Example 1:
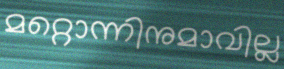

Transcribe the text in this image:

മറ്റൊന്നിനുമാവില്ല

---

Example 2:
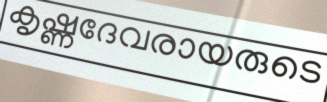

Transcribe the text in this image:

കൃഷ്ണദേവരായരുടെ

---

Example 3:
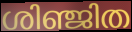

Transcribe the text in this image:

ശിഞ്ജിത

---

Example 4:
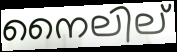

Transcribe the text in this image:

നൈലില്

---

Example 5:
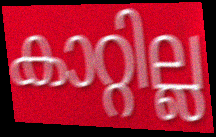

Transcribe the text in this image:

കാറ്റില്ല